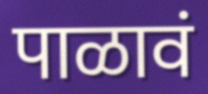
पाळावं